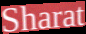
Sharat